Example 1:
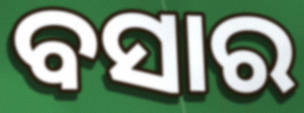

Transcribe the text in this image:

ବସାର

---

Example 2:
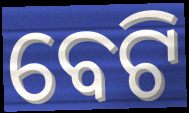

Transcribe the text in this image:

ବେଟି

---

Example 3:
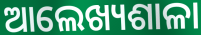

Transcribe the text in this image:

ଆଲେଖ୍ୟଶାଳା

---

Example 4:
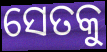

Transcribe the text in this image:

ସେତକୁ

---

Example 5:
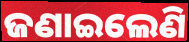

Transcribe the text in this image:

ଜଣାଇଲେଣି